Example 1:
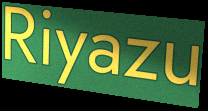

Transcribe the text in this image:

Riyazu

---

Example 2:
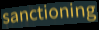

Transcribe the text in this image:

sanctioning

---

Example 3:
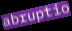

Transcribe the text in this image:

abruptio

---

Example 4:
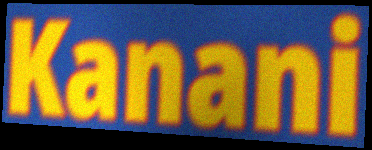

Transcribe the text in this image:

Kanani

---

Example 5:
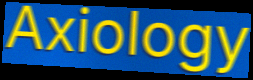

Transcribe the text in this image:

Axiology